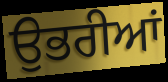
ਉਭਰੀਆਂ